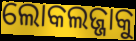
ଲୋକଲଜ୍ଜାକୁ